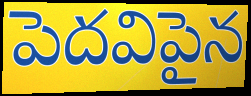
పెదవిపైన